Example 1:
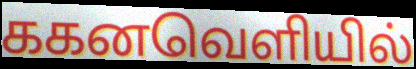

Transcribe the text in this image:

ககனவெளியில்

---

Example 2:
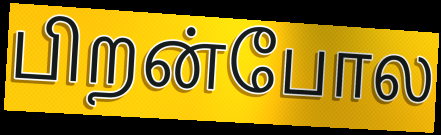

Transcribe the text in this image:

பிறன்போல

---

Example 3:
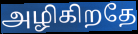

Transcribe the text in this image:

அழிகிறதே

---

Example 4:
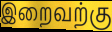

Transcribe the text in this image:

இறைவற்கு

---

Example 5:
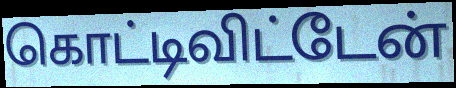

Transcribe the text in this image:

கொட்டிவிட்டேன்